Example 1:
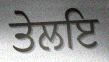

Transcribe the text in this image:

ਤੇਲਇ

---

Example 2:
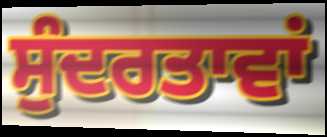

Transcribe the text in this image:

ਸੁੰਦਰਤਾਵਾਂ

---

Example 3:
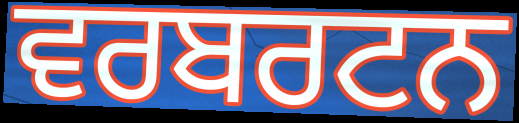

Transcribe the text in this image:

ਵਰਬਰਟਨ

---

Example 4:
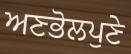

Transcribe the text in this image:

ਅਣਭੋਲਪੁਣੇ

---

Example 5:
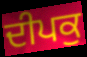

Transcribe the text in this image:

ਦੀਪਕੁ